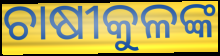
ଚାଷୀକୁଳଙ୍କ